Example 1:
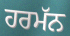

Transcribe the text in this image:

ਹਰਮੱਨ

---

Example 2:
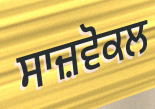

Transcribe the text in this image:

ਸਾਜ਼ਵੋਕਲ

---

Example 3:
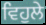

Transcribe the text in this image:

ਵਿਹੁਲੇ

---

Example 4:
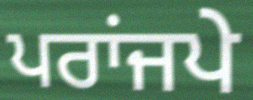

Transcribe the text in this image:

ਪਰਾਂਜਪੇ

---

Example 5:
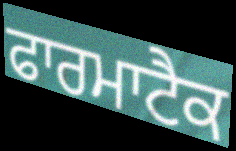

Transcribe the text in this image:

ਫਾਰਮਾਟੈਕ